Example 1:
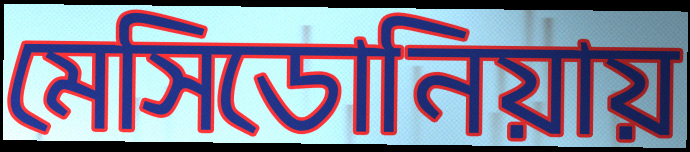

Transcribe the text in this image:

মেসিডোনিয়ায়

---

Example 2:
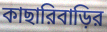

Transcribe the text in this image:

কাছারিবাড়ির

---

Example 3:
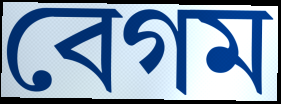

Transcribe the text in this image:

বেগম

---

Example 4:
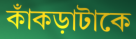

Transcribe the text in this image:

কাঁকড়াটাকে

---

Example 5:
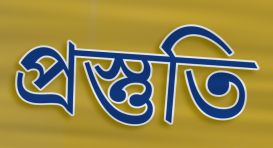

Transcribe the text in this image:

প্রস্তুতি